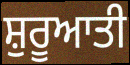
ਸ਼ੁਰੂਆਤੀ